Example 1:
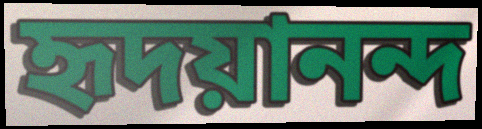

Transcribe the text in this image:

হৃদয়ানন্দ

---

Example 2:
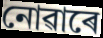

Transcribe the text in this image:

নোৱাৰে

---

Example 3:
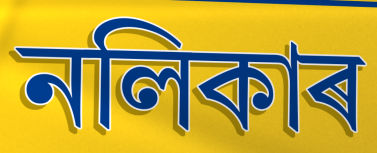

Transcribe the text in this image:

নলিকাৰ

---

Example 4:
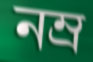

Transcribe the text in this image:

নম্ৰ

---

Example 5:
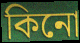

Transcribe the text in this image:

কিনো